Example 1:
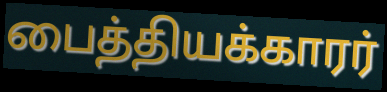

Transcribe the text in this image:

பைத்தியக்காரர்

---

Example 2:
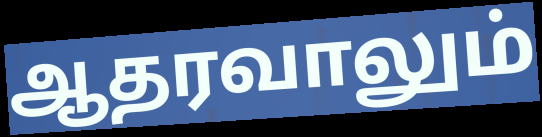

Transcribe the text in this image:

ஆதரவாலும்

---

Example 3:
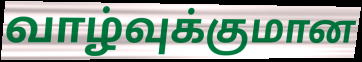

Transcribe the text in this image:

வாழ்வுக்குமான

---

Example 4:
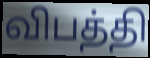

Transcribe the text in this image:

விபத்தி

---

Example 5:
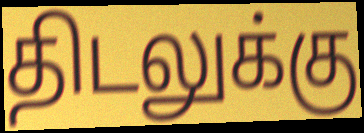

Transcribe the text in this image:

திடலுக்கு